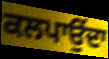
ਕਲਪਾਉਂਦਾ